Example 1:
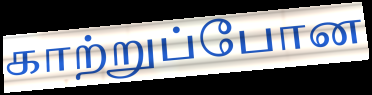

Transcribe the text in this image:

காற்றுப்போன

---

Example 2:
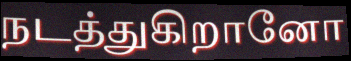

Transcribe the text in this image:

நடத்துகிறானோ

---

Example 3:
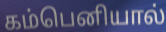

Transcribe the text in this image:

கம்பெனியால்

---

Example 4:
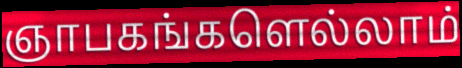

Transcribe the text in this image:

ஞாபகங்களெல்லாம்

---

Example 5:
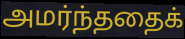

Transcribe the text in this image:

அமர்ந்ததைக்